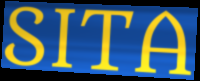
SITA